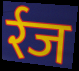
र्रज